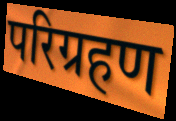
परिग्रहण